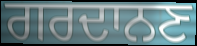
ਗਰਦਾਨਣ